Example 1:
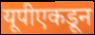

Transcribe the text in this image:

यूपीएकडून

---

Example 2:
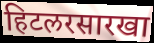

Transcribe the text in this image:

हिटलरसारखा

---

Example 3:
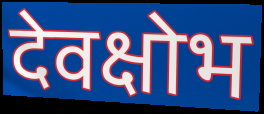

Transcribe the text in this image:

देवक्षोभ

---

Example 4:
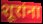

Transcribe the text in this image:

शूरांना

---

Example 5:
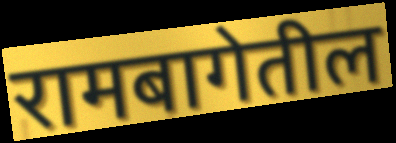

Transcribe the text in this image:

रामबागेतील